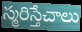
స్మరిస్తేచాలు